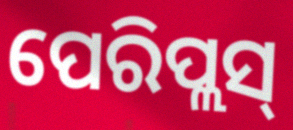
ପେରିପ୍ଲସ୍